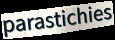
parastichies